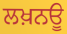
ਲਖ਼ਨਊ